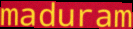
maduram